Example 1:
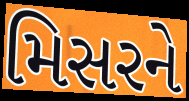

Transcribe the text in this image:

મિસરને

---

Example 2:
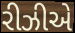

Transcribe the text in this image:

રીઝીએ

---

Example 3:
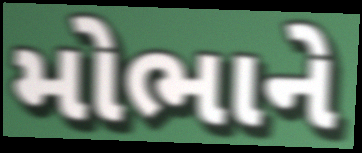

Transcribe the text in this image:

મોભાને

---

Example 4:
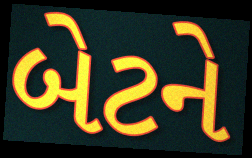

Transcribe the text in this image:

બેટને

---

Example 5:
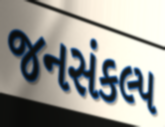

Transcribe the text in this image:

જનસંકલ્પ